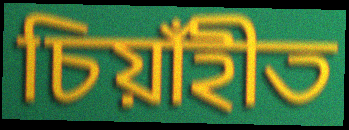
চিয়াঁহীত